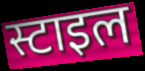
स्टाइल